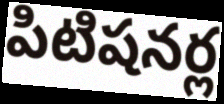
పిటిషనర్ల